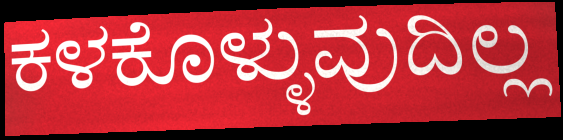
ಕಳಕೊಳ್ಳುವುದಿಲ್ಲ